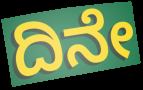
ದಿನೇ